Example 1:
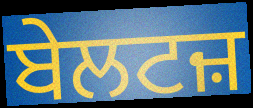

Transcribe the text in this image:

ਬੇਲਟਜ਼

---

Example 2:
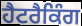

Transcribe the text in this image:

ਹੈਟਰੈਕਿੰਗ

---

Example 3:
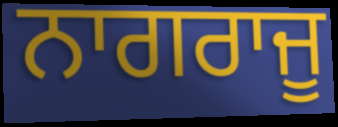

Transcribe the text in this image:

ਨਾਗਰਾਜੂ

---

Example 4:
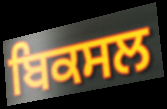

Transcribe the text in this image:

ਬਿਕਸਲ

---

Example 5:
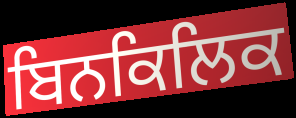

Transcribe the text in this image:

ਬਿਨਕਿਲਿਕ